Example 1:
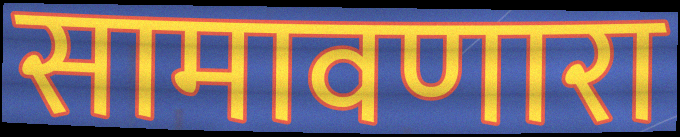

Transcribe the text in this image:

सामावणारा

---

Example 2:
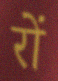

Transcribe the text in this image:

रों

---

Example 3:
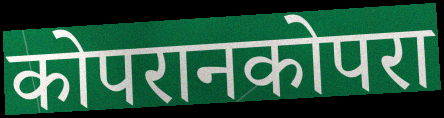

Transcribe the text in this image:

कोपरानकोपरा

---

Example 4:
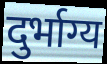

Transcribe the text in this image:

दुर्भाग्य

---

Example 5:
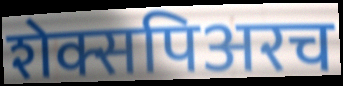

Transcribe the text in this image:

शेक्सपिअरच